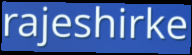
rajeshirke